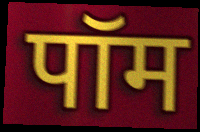
पॉम